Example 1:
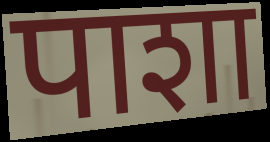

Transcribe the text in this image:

पाशा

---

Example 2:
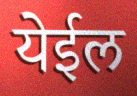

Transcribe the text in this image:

येईल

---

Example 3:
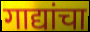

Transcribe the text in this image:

गाद्यांचा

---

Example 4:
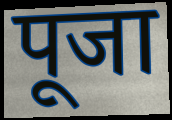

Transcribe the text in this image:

पूजा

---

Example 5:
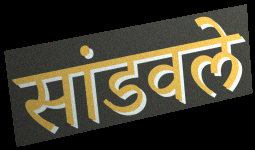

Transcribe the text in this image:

सांडवले